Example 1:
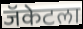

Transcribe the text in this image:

जॅकेटला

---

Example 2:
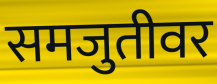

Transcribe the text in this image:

समजुतीवर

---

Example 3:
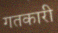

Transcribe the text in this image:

गतकारी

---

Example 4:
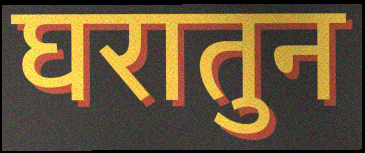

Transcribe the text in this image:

घरातुन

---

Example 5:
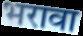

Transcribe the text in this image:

भरावा